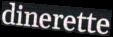
dinerette